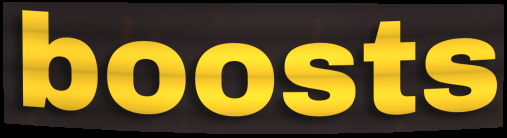
boosts